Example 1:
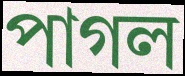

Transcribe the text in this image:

পাগল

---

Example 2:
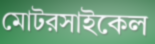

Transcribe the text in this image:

মোটরসাইকেল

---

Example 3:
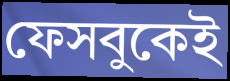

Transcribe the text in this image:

ফেসবুকেই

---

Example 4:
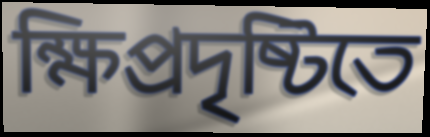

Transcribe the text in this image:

ক্ষিপ্রদৃষ্টিতে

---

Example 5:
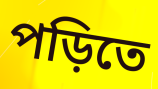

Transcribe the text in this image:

পড়িতে